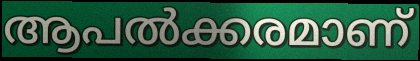
ആപൽക്കരമാണ്